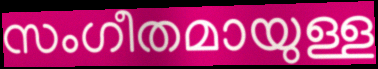
സംഗീതമായുള്ള